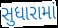
સુધારામાં